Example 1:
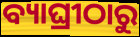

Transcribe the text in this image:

ବ୍ୟାଘ୍ରୀଠାରୁ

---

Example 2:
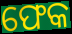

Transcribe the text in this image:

ଫେକ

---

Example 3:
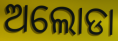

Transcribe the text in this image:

ଅଲୋଡା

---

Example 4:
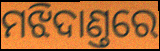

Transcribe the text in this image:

ମଝିଦାଣ୍ତରେ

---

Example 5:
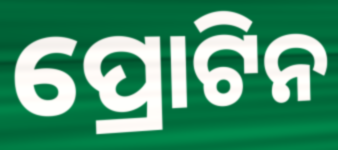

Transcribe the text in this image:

ପ୍ରୋଟିନ